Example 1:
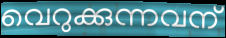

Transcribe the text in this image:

വെറുക്കുന്നവന്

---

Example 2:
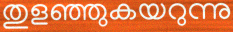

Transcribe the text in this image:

തുളഞ്ഞുകയറുന്നു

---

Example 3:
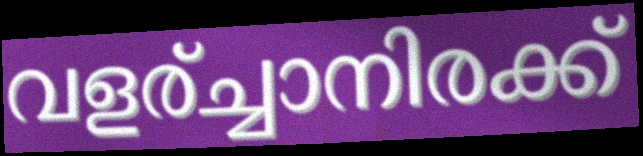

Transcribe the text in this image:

വളര്ച്ചാനിരക്ക്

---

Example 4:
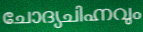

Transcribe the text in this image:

ചോദ്യചിഹ്നവും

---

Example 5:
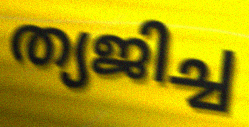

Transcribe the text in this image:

ത്യജിച്ച